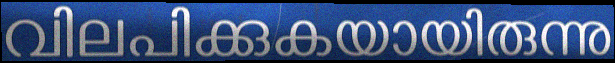
വിലപിക്കുകയായിരുന്നു